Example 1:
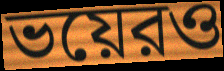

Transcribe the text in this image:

ভয়েরও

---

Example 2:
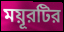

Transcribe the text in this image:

ময়ূরটির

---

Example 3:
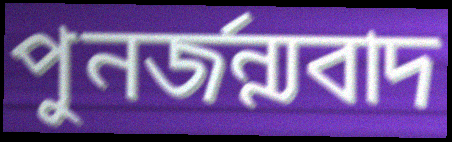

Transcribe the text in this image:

পুনর্জন্মবাদ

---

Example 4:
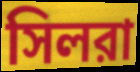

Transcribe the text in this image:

সিলরা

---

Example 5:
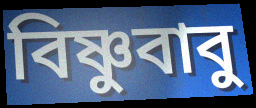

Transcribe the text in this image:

বিষ্ণুবাবু